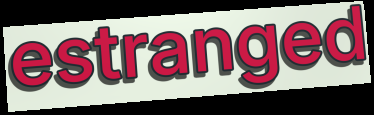
estranged